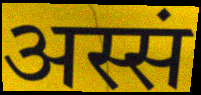
अस्सं